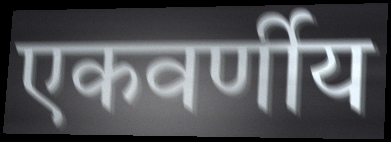
एकवर्णीय